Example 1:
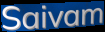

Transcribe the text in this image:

Saivam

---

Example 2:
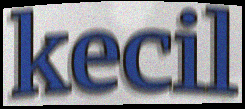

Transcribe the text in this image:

kecil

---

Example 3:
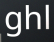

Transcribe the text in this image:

ghl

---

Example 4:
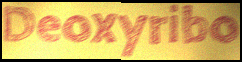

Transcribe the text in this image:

Deoxyribo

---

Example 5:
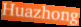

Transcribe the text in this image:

Huazhong